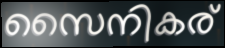
സൈനികര്